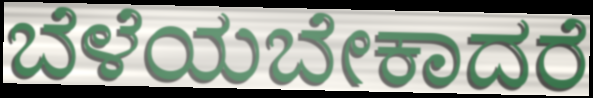
ಬೆಳೆಯಬೇಕಾದರೆ